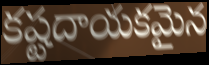
కష్టదాయకమైన